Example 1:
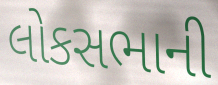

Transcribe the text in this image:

લોકસભાની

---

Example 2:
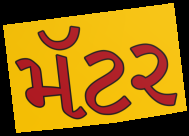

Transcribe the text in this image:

મૅટર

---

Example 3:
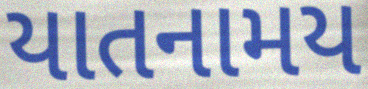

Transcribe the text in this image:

યાતનામય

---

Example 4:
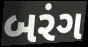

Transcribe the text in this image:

બરંગ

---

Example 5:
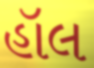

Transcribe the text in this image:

હૉલ